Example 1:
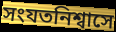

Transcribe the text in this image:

সংযতনিশ্বাসে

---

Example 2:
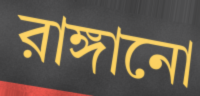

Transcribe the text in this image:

রাঙ্গানো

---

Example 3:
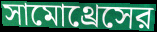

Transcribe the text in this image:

সামোথ্রেসের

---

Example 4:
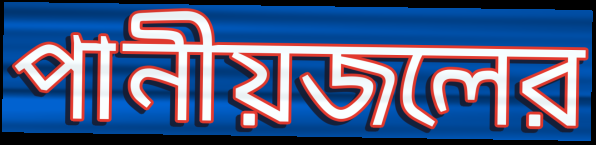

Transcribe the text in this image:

পানীয়জলের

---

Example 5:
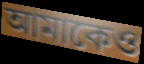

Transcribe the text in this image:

আমাকেও